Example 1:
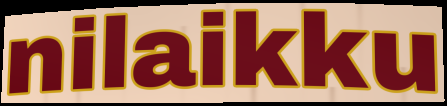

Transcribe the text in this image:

nilaikku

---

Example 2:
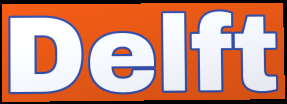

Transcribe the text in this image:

Delft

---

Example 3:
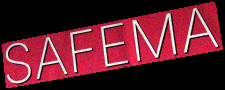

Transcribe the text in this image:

SAFEMA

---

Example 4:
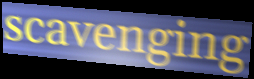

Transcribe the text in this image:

scavenging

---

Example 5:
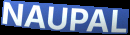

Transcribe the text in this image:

NAUPAL